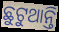
ଛୁଟୁଥାନ୍ତି